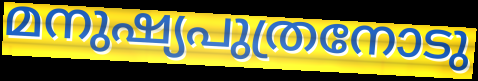
മനുഷ്യപുത്രനോടു